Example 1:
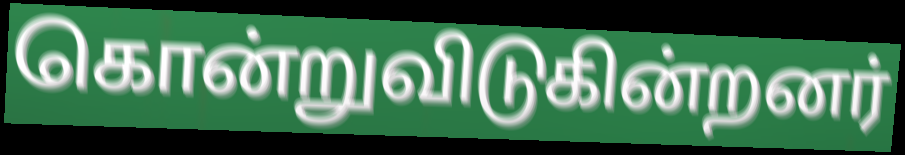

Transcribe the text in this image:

கொன்றுவிடுகின்றனர்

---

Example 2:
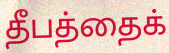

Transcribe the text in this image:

தீபத்தைக்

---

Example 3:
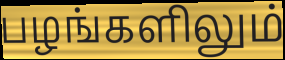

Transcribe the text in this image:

பழங்களிலும்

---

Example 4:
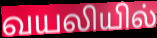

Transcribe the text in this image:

வயலியில்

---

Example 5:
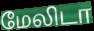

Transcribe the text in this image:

மேலிடா